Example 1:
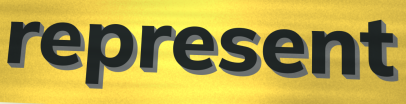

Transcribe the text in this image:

represent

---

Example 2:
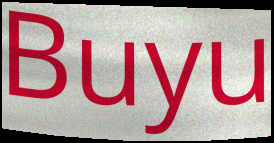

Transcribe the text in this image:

Buyu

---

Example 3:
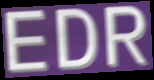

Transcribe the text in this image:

EDR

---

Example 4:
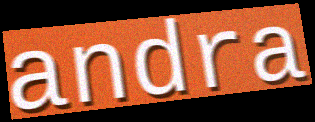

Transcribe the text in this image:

andra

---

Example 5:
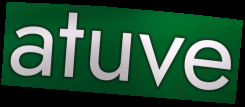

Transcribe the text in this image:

atuve